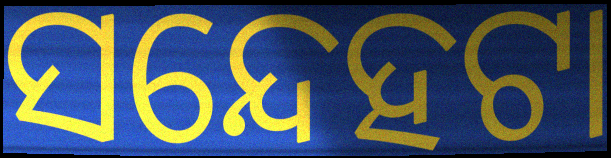
ସନ୍ଦେହଟା